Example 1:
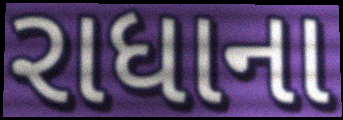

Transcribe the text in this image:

રાધાના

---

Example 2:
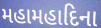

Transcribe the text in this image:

મહામહાદિના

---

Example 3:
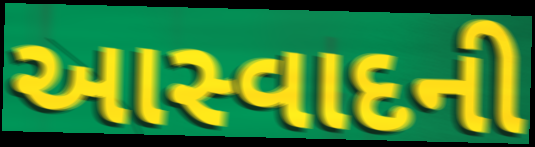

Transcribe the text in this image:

આસ્વાદની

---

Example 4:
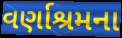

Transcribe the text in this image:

વર્ણાશ્રમના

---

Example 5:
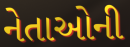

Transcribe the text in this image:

નેતાઓની